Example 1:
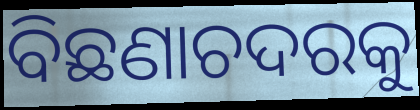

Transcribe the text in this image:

ବିଛଣାଚଦରକୁ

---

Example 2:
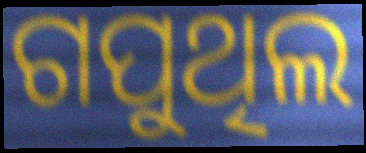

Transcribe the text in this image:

ଗପୁଥିଲ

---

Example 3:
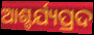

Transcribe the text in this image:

ଆଶ୍ଚର୍ଯ୍ୟପ୍ରଦ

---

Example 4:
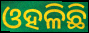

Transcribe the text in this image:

ଓହଳିଛି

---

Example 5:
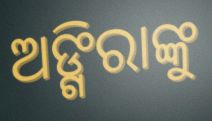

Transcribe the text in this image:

ଅଙ୍ଗିରାଙ୍କୁ